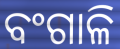
ବଂଗାଳି